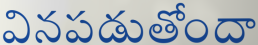
వినపడుతోందా